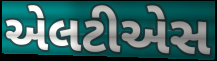
એલટીએસ